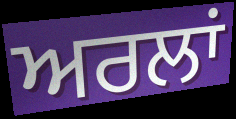
ਅਰਲਾਂ